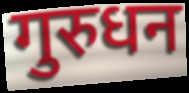
गुरुधन